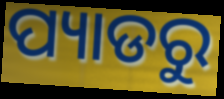
ପ୍ୟାଡରୁ